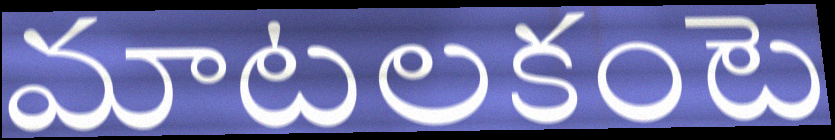
మాటలకంటె